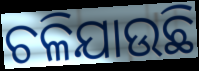
ଚଳିଯାଉଛି